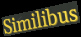
Similibus